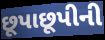
છૂપાછૂપીની